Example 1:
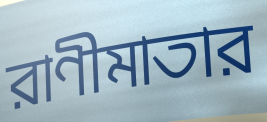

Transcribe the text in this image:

রাণীমাতার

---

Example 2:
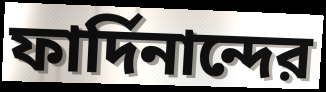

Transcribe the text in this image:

ফার্দিনান্দের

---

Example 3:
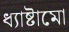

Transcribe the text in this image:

ধ্যাষ্টামো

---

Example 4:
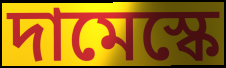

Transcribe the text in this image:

দামেস্কে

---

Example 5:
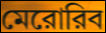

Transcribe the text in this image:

মেরোরিব